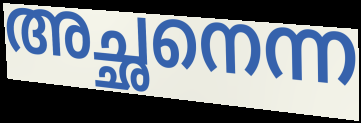
അച്ഛനെന്ന